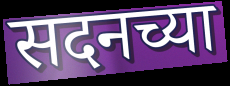
सदनच्या